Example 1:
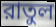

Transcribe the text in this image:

রাতুল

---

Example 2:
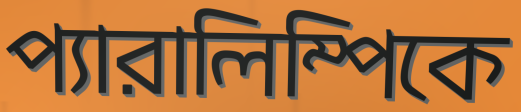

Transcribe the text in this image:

প্যারালিম্পিকে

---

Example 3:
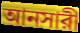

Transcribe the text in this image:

আনসারী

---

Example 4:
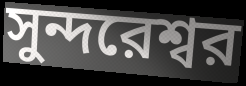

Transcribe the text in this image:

সুন্দরেশ্বর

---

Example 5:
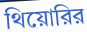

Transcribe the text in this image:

থিয়োরির